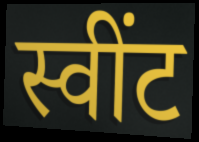
स्वींट